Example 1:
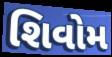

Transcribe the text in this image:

શિવોમ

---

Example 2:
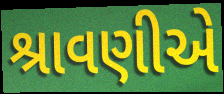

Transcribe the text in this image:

શ્રાવણીએ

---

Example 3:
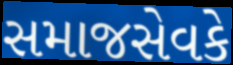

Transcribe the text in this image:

સમાજસેવકે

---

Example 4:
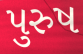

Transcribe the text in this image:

પુરુષ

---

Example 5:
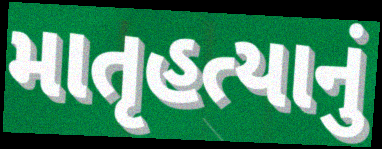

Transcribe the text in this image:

માતૃહત્યાનું